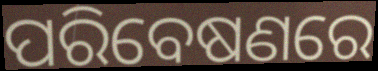
ପରିବେଷଣରେ